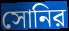
সোনির